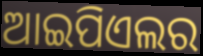
ଆଇପିଏଲର